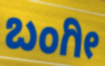
ಬಂಗೀ